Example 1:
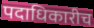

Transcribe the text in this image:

पदाधिकारीच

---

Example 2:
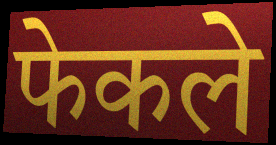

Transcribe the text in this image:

फेकले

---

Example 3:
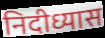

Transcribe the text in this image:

निदीध्यास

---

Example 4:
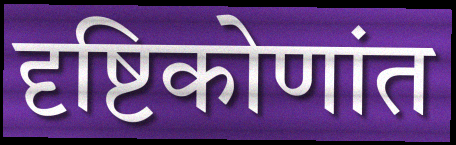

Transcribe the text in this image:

दृष्टिकोणांत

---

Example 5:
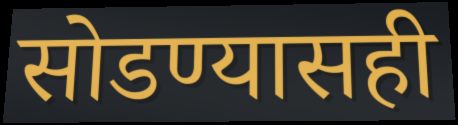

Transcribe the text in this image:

सोडण्यासही